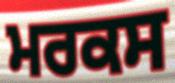
ਮਰਕਸ